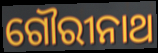
ଗୌରୀନାଥ